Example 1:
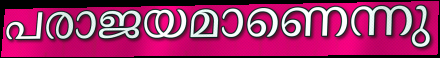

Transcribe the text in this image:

പരാജയമാണെന്നു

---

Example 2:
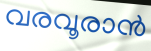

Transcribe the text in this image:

വരവൂരാൻ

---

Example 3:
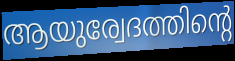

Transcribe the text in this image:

ആയുര്വേദത്തിന്റെ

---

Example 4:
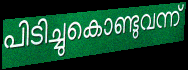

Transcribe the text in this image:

പിടിച്ചുകൊണ്ടുവന്ന്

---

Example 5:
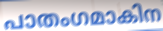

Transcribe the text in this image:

പാതംഗമാകിന